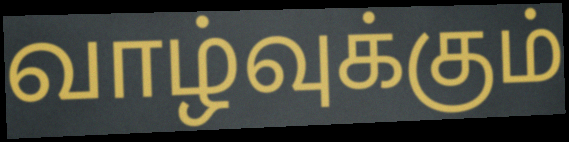
வாழ்வுக்கும்